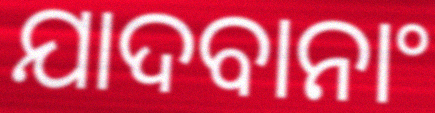
ଯାଦବାନାଂ